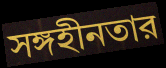
সঙ্গহীনতার